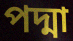
পদ্মা